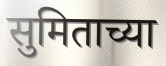
सुमिताच्या